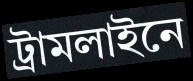
ট্রামলাইনে